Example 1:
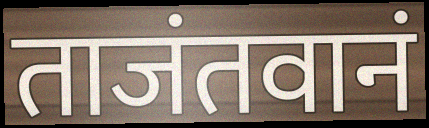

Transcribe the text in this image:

ताजंतवानं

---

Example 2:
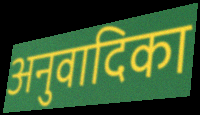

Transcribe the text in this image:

अनुवादिका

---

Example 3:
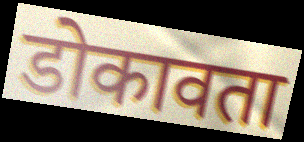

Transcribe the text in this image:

डोकावता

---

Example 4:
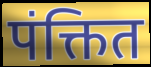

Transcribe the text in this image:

पंक्तित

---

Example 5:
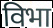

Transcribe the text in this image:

विभा